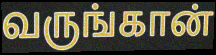
வருங்கான்